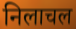
निलाचल